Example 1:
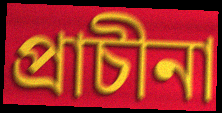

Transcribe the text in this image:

প্রাচীনা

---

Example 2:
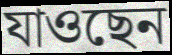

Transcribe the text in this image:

যাওছেন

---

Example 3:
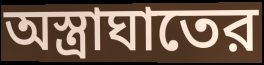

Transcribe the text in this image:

অস্ত্রাঘাতের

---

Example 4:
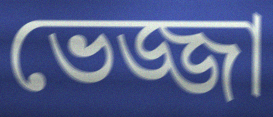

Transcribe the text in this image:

ভেজ্জা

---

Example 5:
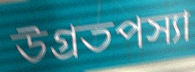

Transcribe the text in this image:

উগ্রতপস্যা